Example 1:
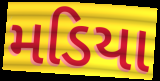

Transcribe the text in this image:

મડિયા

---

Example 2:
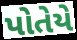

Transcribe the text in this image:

પોતેયે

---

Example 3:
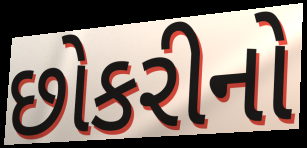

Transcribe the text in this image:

છોકરીનો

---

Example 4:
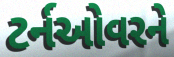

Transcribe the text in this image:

ટર્નઓવરને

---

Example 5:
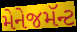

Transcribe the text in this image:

મેનેજમૅન્ટ